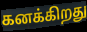
கனக்கிறது